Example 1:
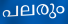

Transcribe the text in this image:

പലരും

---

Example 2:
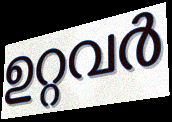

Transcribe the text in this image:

ഉറ്റവർ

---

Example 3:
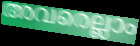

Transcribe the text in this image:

അവരെല്ലാം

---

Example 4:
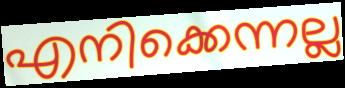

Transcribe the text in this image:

എനിക്കെന്നല്ല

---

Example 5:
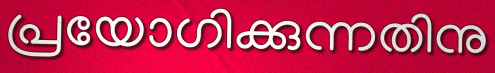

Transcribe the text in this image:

പ്രയോഗിക്കുന്നതിനു